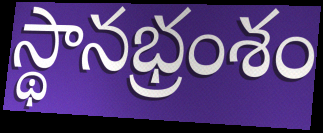
స్థానభ్రంశం